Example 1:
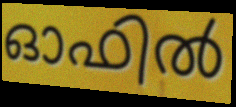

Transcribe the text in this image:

ഓഫിൽ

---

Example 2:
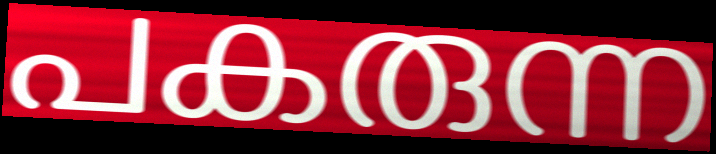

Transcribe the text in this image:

പകരുന്ന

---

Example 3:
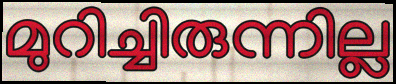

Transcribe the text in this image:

മുറിച്ചിരുന്നില്ല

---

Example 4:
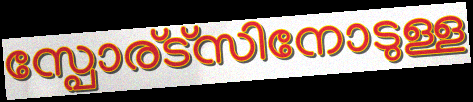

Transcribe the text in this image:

സ്പോര്ട്സിനോടുള്ള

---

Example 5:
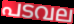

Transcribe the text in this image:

പടവല